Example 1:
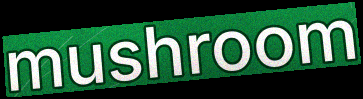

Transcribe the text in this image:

mushroom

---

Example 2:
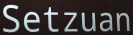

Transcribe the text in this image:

Setzuan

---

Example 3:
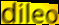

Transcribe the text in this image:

dileo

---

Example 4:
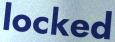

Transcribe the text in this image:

locked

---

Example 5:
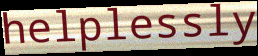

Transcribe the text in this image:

helplessly